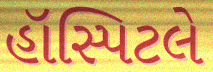
હૉસ્પિટલે